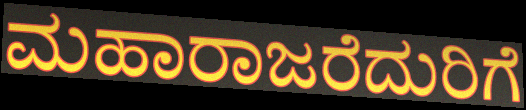
ಮಹಾರಾಜರೆದುರಿಗೆ